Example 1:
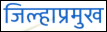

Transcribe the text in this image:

जिल्हाप्रमुख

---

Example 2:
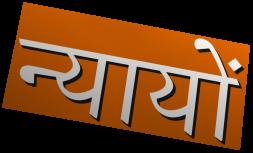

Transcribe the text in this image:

न्यायों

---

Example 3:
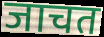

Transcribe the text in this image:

जाचत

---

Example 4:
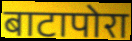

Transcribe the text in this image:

बाटापोरा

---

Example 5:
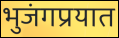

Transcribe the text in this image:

भुजंगप्रयात